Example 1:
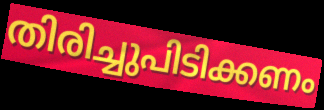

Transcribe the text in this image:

തിരിച്ചുപിടിക്കണം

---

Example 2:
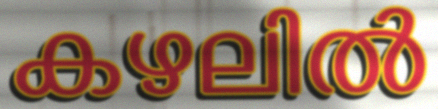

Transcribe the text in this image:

കഴലിൽ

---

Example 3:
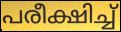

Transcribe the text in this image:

പരീക്ഷിച്ച്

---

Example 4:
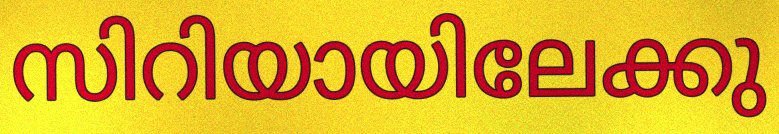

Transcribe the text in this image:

സിറിയായിലേക്കു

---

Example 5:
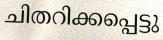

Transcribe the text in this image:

ചിതറിക്കപ്പെട്ടു